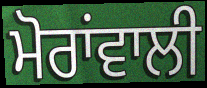
ਮੋਰਾਂਵਾਲੀ